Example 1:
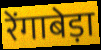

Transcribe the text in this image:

रेंगाबेड़ा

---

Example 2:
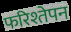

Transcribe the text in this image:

फरिश्तेपन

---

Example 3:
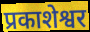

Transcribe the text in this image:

प्रकाशेश्वर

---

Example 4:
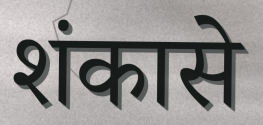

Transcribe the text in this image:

शंकासे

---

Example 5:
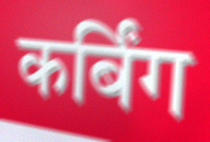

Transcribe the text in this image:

कर्बिंग